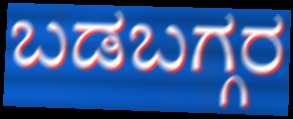
ಬಡಬಗ್ಗರ